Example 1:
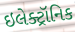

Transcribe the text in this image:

ઇલેક્ટ્રૉનિક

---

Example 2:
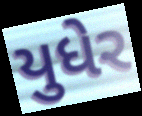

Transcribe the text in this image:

યુધેર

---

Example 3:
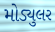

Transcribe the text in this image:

મોડ્યુલર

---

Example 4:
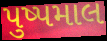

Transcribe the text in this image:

પુષ્પમાલ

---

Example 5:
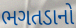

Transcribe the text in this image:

ભગતડાનો